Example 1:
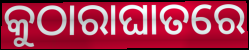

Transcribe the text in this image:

କୁଠାରାଘାତରେ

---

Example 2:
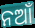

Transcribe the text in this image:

ନଆଁ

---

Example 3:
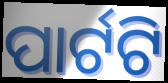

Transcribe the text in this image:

ପାର୍ଟଟି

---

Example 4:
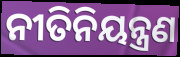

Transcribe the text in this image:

ନୀତିନିୟନ୍ତ୍ରଣ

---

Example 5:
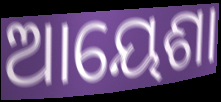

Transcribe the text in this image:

ଆୟେଶା